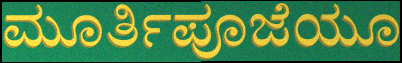
ಮೂರ್ತಿಪೂಜೆಯೂ